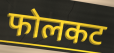
फोलकट